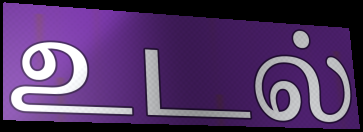
உடல்